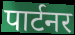
पार्टनर